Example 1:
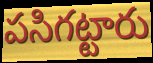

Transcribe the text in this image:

పసిగట్టారు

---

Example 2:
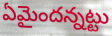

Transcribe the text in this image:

ఏమైందన్నట్టు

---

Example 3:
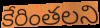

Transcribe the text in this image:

కేరింతలని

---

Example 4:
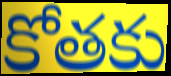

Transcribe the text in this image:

కోతకు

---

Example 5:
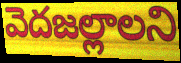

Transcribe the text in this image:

వెదజల్లాలని